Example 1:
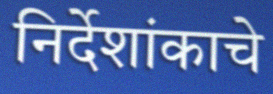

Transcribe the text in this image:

निर्देशांकाचे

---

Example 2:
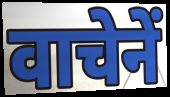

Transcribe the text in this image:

वाचेनें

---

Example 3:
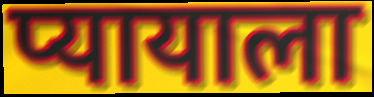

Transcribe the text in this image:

प्यायाला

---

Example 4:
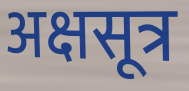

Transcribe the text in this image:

अक्षसूत्र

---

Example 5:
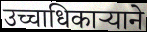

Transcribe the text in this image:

उच्चाधिकाऱ्याने